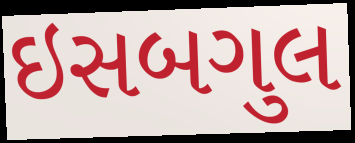
ઇસબગુલ